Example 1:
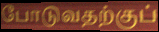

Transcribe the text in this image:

போடுவதற்குப்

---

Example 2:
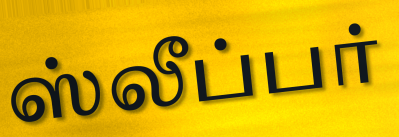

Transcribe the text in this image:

ஸ்லீப்பர்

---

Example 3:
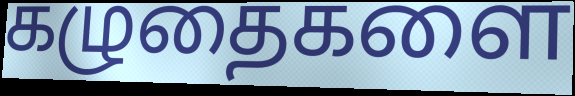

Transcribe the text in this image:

கழுதைகளை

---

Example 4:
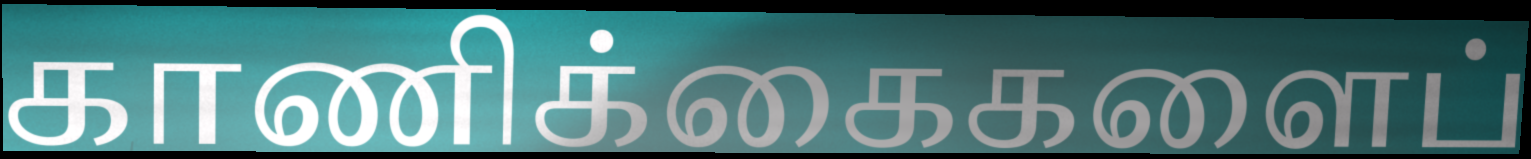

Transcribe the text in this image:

காணிக்கைகளைப்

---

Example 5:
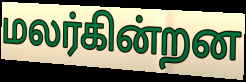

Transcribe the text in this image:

மலர்கின்றன